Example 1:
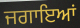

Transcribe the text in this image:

ਜਗਾਇਆਂ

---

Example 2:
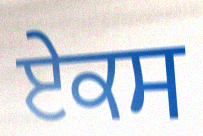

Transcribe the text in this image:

ਏਕਸ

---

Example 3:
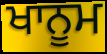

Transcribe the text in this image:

ਖਾਨੂਮ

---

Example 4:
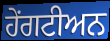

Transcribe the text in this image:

ਹੇਂਗਟੀਅਨ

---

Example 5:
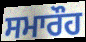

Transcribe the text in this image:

ਸਮਾਰੌਹ